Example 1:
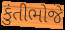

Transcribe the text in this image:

કુંતીભોજે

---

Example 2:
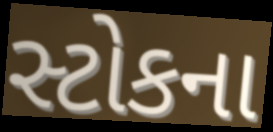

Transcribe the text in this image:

સ્ટોકના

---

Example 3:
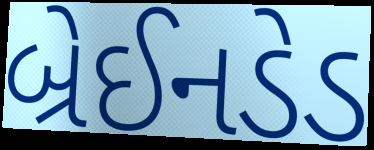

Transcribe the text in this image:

બ્રેઈનડેડ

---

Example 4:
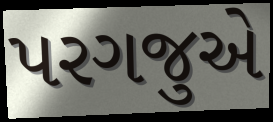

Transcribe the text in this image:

પરગજુએ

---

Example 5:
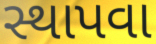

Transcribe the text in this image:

સ્થાપવા